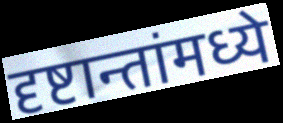
दृष्टान्तांमध्ये